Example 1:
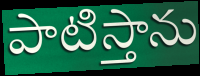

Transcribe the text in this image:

పాటిస్తాను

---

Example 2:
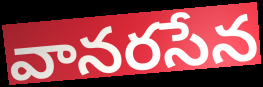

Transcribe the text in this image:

వానరసేన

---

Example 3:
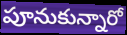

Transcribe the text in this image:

పూనుకున్నారో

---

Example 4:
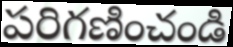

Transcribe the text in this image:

పరిగణించండి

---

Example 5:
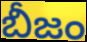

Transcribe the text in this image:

బీజం